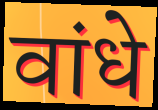
वांधे